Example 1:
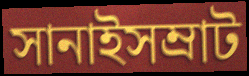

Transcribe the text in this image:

সানাইসম্রাট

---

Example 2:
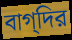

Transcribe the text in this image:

বাগ্‌দির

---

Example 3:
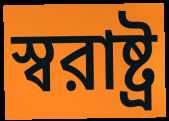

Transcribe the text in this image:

স্বরাষ্ট্র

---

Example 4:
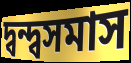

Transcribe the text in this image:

দ্বন্দ্বসমাস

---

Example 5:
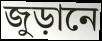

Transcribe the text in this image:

জুড়ানে